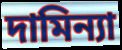
দামিন্যা